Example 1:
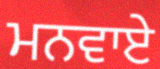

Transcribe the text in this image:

ਮਨਵਾਏ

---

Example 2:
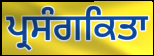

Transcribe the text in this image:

ਪ੍ਰਸੰਗਕਿਤਾ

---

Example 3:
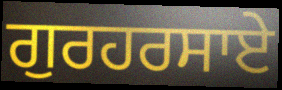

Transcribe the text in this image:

ਗੁਰਹਰਸਾਏ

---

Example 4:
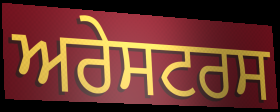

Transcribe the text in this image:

ਅਰੇਸਟਰਸ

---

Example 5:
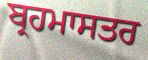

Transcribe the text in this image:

ਬ੍ਰਹਮਾਸਤਰ